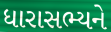
ધારાસભ્યને